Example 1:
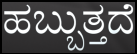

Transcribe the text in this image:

ಹಬ್ಬುತ್ತದೆ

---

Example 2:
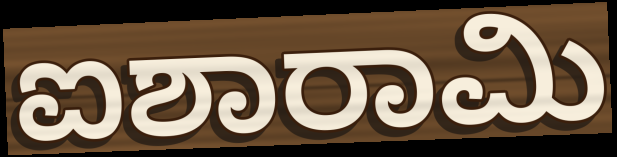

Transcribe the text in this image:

ಐಶಾರಾಮಿ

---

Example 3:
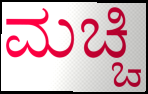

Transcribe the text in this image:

ಮಚ್ಚಿ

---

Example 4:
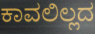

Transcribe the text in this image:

ಕಾವಲಿಲ್ಲದ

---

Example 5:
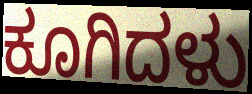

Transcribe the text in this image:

ಕೂಗಿದಳು